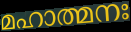
മഹാത്മനഃ